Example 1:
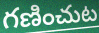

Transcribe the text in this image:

గణించుట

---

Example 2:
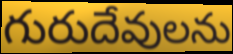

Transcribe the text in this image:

గురుదేవులను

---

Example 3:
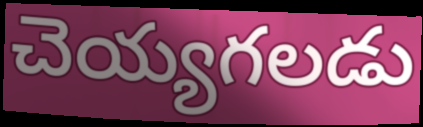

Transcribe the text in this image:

చెయ్యగలడు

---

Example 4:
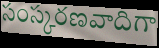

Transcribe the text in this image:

సంస్కరణవాదిగా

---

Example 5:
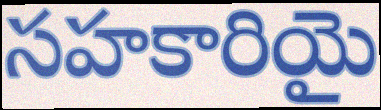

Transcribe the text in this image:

సహకారియై